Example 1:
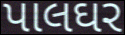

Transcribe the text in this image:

પાલઘર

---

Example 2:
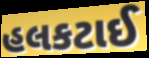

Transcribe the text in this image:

હલકટાઈ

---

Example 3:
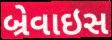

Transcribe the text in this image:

બ્રેવાઇસ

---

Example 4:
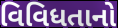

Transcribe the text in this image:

વિવિધતાનો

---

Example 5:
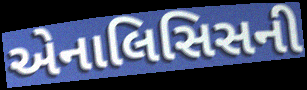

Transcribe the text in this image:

એનાલિસિસની